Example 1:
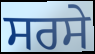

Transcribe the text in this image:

ਸਰਸੇ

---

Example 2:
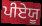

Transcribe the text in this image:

ਪੀਏਯੂ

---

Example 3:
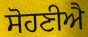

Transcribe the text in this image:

ਸੋਹਣੀਐ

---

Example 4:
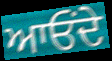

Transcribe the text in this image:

ਆਓਂਦੇ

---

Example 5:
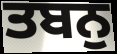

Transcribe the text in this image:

ਤਬਨੁ